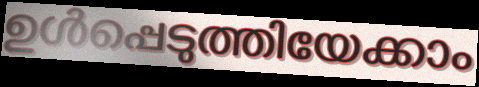
ഉൾപ്പെടുത്തിയേക്കാം